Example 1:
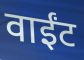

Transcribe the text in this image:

वाईंट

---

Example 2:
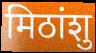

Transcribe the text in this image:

मिठांशु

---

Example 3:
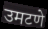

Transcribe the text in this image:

उमटणे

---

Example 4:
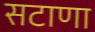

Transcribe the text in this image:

सटाणा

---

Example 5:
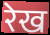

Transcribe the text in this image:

रेख